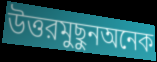
উত্তরমুছুনঅনেক